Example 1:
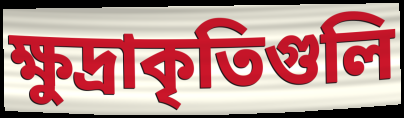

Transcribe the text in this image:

ক্ষুদ্রাকৃতিগুলি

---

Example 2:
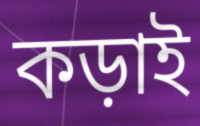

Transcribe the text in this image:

কড়াই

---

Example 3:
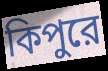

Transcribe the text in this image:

কিপুরে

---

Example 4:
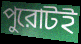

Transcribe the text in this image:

পুরোটই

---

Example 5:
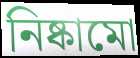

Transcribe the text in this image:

নিষ্কামো